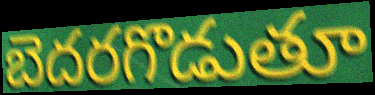
బెదరగొడుతూ